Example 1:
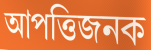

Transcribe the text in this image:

আপত্তিজনক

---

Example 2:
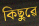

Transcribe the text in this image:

কিছুৱে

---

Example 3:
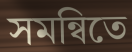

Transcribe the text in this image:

সমন্বিতে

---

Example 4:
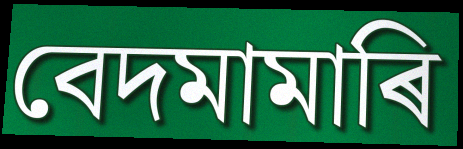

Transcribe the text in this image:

বেদমামাৰি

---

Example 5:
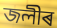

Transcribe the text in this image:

জলীৰ